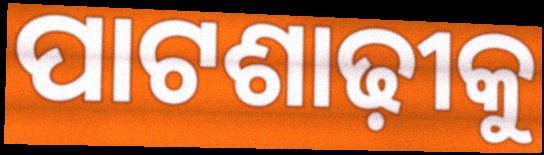
ପାଟଶାଢ଼ୀକୁ